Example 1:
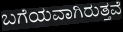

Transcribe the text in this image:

ಬಗೆಯವಾಗಿರುತ್ತವೆ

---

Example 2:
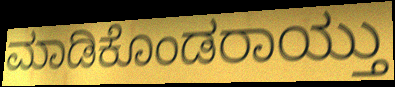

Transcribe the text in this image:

ಮಾಡಿಕೊಂಡರಾಯ್ತು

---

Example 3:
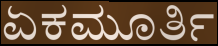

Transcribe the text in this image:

ಏಕಮೂರ್ತಿ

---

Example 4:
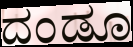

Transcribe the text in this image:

ದಂಡೂ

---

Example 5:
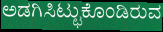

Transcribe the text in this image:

ಅಡಗಿಸಿಟ್ಟುಕೊಂಡಿರುವ